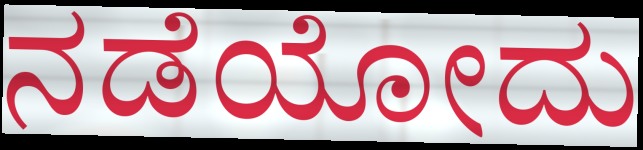
ನಡೆಯೋದು